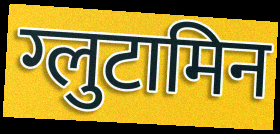
ग्लुटामिन